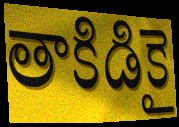
తాకిడికై